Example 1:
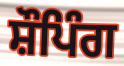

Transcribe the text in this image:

ਸ਼ੌਪਿੰਗ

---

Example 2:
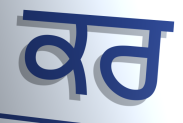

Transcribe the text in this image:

ਕਰ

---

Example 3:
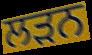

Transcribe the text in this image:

ਲਡ਼ਨ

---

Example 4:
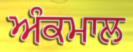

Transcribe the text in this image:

ਅੰਕਮਾਲ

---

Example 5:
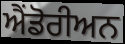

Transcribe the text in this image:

ਐਂਡੋਰੀਅਨ